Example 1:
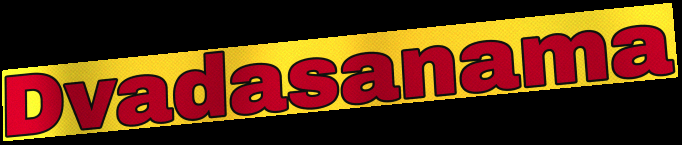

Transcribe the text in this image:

Dvadasanama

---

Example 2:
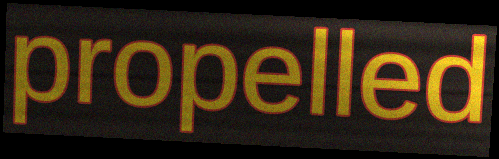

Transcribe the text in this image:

propelled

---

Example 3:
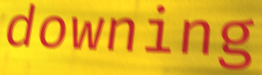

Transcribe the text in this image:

downing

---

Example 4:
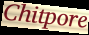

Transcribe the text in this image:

Chitpore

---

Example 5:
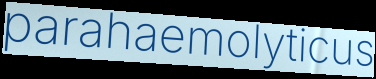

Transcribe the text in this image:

parahaemolyticus